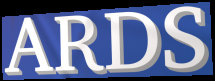
ARDS